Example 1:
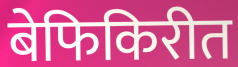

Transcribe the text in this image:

बेफिकिरीत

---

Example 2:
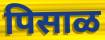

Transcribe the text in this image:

पिसाळ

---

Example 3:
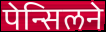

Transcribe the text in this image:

पेन्सिलने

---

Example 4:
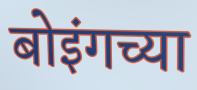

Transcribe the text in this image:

बोइंगच्या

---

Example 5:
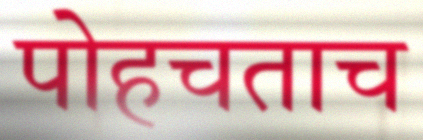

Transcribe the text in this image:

पोहचताच